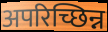
अपरिच्छिन्न